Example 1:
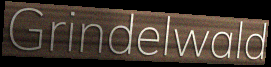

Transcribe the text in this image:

Grindelwald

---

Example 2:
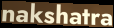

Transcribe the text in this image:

nakshatra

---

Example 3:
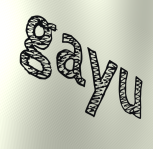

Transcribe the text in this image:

gayu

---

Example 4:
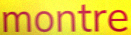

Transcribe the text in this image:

montre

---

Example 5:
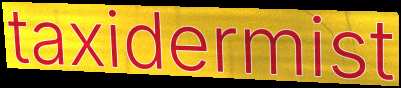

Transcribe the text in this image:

taxidermist